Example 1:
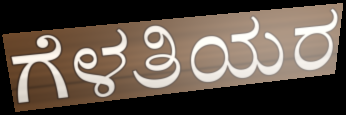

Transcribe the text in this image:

ಗೆಳತಿಯರ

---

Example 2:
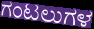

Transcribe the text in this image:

ಗಂಟಲುಗಳ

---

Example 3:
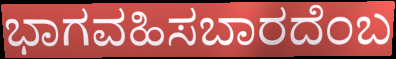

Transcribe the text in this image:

ಭಾಗವಹಿಸಬಾರದೆಂಬ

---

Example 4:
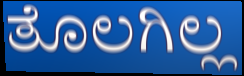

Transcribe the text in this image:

ತೊಲಗಿಲ್ಲ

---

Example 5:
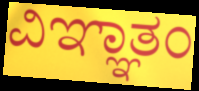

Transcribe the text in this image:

ವಿಞ್ಞಾತಂ